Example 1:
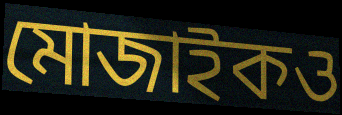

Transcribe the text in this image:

মোজাইকও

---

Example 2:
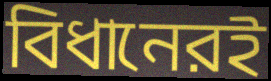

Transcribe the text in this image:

বিধানেরই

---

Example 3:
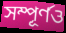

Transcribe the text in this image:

সম্পূর্ণও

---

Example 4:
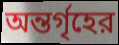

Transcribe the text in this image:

অন্তর্গৃহের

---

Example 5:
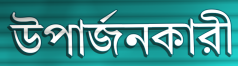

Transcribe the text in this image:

উপার্জনকারী